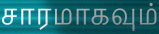
சாரமாகவும்